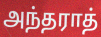
அந்தராத்